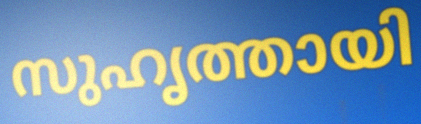
സുഹൃത്തായി